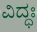
ವಿದ್ಧಃ